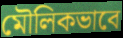
মৌলিকভাবে